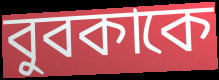
বুবকাকে